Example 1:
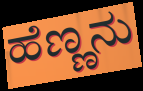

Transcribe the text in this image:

ಹೆಣ್ಣನು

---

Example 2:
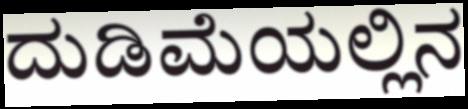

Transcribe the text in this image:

ದುಡಿಮೆಯಲ್ಲಿನ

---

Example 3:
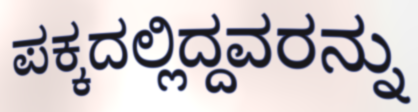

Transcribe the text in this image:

ಪಕ್ಕದಲ್ಲಿದ್ದವರನ್ನು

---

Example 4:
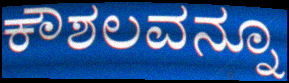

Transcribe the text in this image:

ಕೌಶಲವನ್ನೂ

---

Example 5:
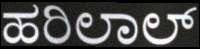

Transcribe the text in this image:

ಹರಿಲಾಲ್